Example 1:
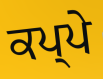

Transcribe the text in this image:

ਕਪ੍ਪੇ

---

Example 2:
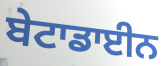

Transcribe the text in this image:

ਬੇਟਾਡਾਈਨ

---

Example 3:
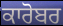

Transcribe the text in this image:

ਕਾਰੋਬਰ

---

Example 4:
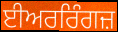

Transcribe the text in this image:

ਈਅਰਰਿੰਗਜ਼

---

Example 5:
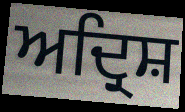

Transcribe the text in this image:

ਅਦ੍ਰਿਸ਼